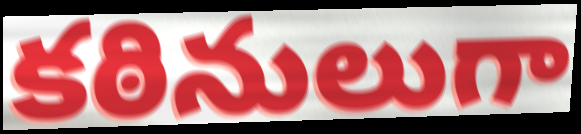
కఠినులుగా